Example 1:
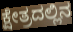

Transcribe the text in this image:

ಕ್ಷೇತ್ರದಲ್ಲಿನ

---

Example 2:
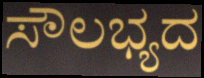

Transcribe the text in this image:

ಸೌಲಭ್ಯದ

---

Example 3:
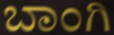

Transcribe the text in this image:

ಬಾಂಗಿ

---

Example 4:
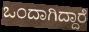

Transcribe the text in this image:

ಒಂದಾಗಿದ್ದಾರೆ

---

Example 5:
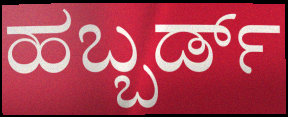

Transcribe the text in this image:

ಹಬ್ಬರ್ಡ್